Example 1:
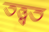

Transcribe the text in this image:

তত্ত্বত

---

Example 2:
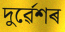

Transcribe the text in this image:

দুৰ্ৱেশৰ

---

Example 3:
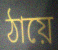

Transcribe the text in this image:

ঠায়ে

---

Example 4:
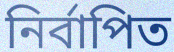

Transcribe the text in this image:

নিৰ্বাপিত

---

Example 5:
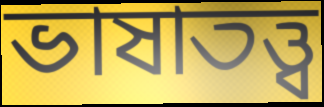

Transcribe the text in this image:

ভাষাতত্ত্ব